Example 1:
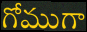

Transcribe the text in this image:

గోముగా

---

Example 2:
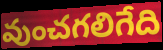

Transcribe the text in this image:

వుంచగలిగేది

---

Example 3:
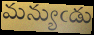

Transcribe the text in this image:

మన్యుఁడు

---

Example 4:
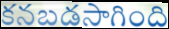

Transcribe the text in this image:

కనబడసాగింది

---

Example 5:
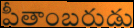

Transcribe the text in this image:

పీతాంబరుడు